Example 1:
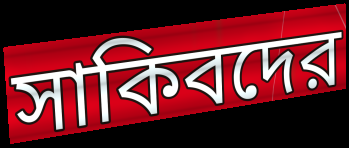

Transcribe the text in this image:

সাকিবদের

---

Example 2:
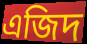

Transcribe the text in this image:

এজিদ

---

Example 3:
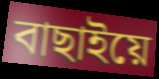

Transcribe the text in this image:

বাছাইয়ে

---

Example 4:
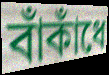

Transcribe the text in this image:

বাঁকাঁধে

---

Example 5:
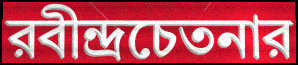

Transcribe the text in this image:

রবীন্দ্রচেতনার